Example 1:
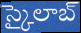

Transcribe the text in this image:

స్కైలాబ్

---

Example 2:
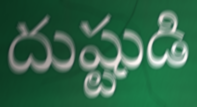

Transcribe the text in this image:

దుష్టుడి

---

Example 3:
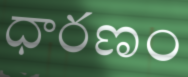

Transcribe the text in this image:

ధారణం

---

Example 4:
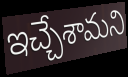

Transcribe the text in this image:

ఇచ్చేశామని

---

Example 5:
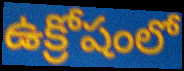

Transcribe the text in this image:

ఉక్రోషంలో